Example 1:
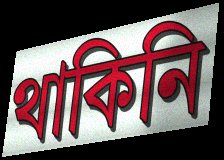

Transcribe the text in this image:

থাকিনি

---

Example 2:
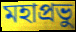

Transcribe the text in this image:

মহাপ্রভু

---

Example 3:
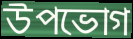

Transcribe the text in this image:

উপভোগ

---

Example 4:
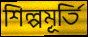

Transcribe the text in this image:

শিল্পমূর্তি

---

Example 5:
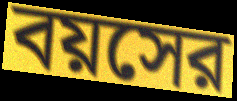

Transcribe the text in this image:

বয়সের